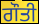
ਗੌਤੀ